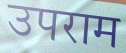
उपराम